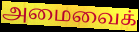
அமைவைக்